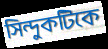
সিন্দুকটিকে